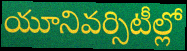
యూనివర్సిటీల్లో